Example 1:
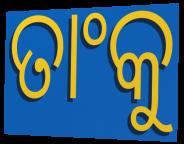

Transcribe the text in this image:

ତାଂକୁ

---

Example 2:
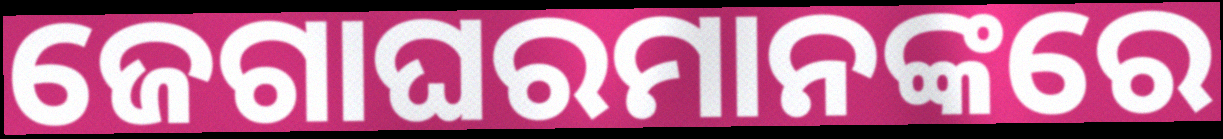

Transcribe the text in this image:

ଜେଗାଘରମାନଙ୍କରେ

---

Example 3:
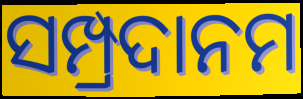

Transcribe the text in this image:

ସମ୍ପ୍ରଦାନମ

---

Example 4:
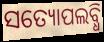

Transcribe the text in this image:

ସତ୍ୟୋପଲବ୍ଧି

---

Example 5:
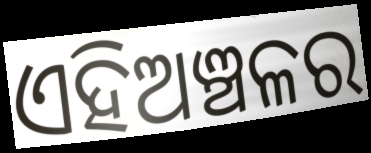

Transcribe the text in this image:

ଏହିଅଞ୍ଚଳର